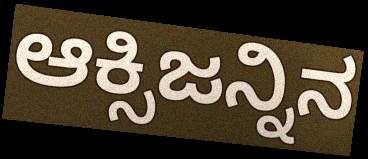
ಆಕ್ಸಿಜನ್ನಿನ